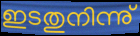
ഇടതുനിന്നു്